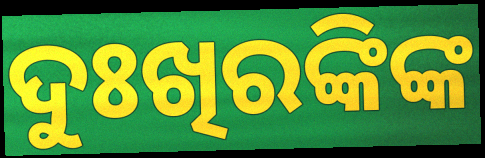
ଦୁଃଖିରଙ୍କିଙ୍କ